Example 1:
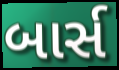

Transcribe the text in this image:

બાર્સ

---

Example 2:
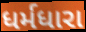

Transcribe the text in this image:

ધર્મધારા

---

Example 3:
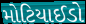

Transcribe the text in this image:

મોટિયાઈડો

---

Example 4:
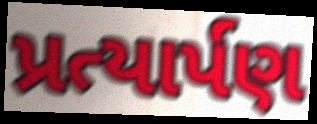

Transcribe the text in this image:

પ્રત્યાર્પણ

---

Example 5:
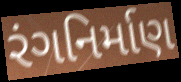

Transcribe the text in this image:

રંગનિર્માણ